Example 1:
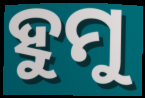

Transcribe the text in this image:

ହୁମୁ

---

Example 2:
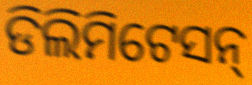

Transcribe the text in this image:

ଡିଲିମିଟେସନ୍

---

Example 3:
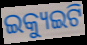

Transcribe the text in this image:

ଇକ୍ୟୁଇଟି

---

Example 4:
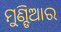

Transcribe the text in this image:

ମୁଣ୍ଡିଆର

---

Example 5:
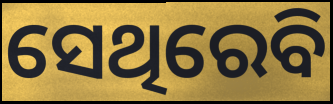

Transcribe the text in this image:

ସେଥିରେବି